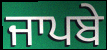
ਜਾਪਬੇ